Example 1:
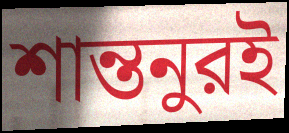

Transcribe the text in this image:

শান্তনুরই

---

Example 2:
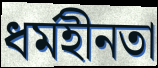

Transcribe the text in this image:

ধর্মহীনতা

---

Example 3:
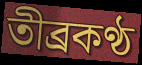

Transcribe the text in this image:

তীব্রকণ্ঠ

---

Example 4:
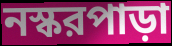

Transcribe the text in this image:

নস্করপাড়া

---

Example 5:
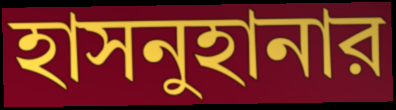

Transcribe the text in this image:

হাসনুহানার